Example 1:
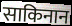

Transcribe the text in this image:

साकिनान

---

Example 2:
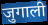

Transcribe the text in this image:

जुगाली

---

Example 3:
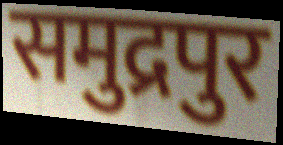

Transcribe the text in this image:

समुद्रपुर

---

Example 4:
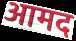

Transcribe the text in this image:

आमद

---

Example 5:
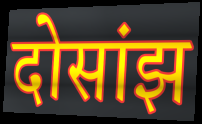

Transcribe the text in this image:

दोसांझ